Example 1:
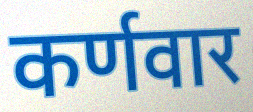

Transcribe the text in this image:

कर्णवार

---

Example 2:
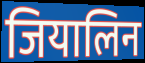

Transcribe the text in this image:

जियालिन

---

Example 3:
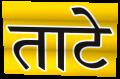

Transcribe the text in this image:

ताटे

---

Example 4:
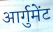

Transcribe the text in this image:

आर्गुमेंट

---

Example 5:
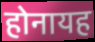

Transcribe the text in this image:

होनायह